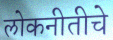
लोकनीतीचे